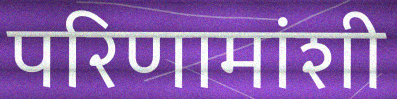
परिणामांशी